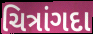
ચિત્રાંગદા